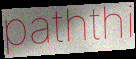
paththi